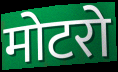
मोटरो